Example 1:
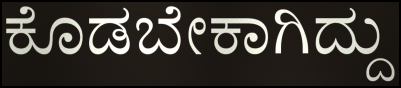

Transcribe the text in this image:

ಕೊಡಬೇಕಾಗಿದ್ದು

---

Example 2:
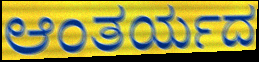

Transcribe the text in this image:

ಆಂತರ್ಯದ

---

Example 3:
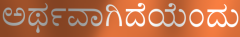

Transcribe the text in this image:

ಅರ್ಥವಾಗಿದೆಯೆಂದು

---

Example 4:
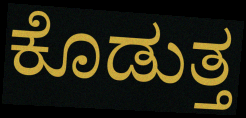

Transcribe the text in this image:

ಕೊಡುತ್ತ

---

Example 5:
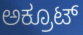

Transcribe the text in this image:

ಅಕ್ರೂಟ್